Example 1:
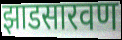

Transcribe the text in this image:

झाडसारवण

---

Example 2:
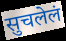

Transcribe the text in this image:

सुचलेलं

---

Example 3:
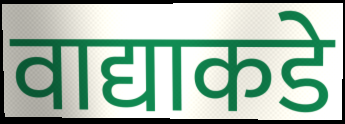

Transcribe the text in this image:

वाद्याकडे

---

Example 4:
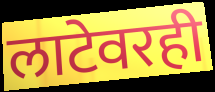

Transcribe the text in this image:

लाटेवरही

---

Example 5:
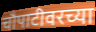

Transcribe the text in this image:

चौपाटीवरच्या